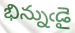
భిన్నుఁడై